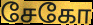
சேகோ